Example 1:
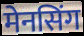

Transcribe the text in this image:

मेनसिंग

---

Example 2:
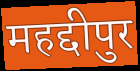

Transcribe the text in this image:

महद्दीपुर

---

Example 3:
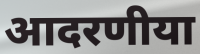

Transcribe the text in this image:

आदरणीया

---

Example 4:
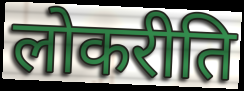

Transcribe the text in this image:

लोकरीति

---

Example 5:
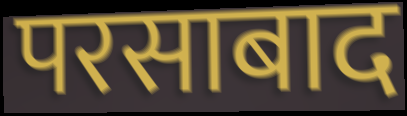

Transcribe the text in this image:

परसाबाद